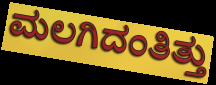
ಮಲಗಿದಂತಿತ್ತು